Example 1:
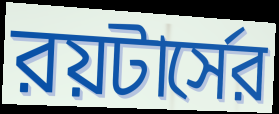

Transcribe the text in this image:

রয়টার্সের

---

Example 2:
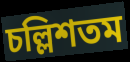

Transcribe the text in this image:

চল্লিশতম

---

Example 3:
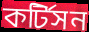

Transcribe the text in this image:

কর্টিসন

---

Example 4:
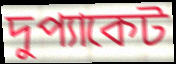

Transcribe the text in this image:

দুপ্যাকেট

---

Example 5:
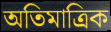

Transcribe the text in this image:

অতিমাত্রিক